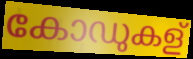
കോഡുകള്